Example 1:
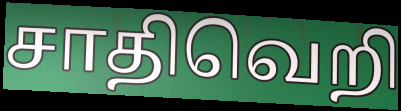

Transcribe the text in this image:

சாதிவெறி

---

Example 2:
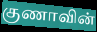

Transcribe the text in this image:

குணாவின்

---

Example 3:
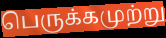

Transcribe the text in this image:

பெருக்கமுற்று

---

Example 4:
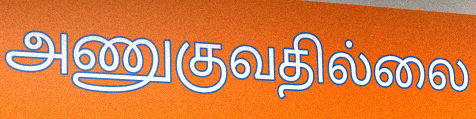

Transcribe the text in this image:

அணுகுவதில்லை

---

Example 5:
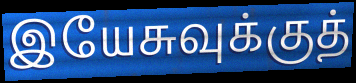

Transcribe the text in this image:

இயேசுவுக்குத்